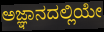
ಅಜ್ಞಾನದಲ್ಲಿಯೇ